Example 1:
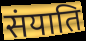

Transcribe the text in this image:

संयाति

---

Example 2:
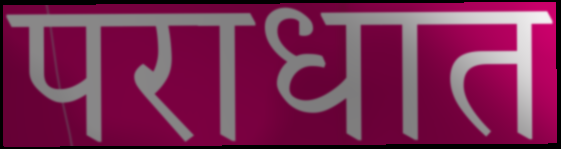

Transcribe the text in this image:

पराधात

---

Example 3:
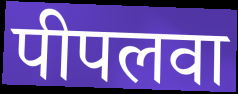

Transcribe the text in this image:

पीपलवा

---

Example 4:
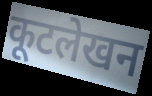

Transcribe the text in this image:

कूटलेखन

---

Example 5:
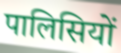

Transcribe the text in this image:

पालिसियों